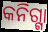
କନିଗ୍ଗା